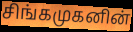
சிங்கமுகனின்